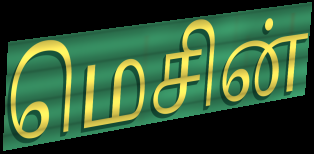
மெசின்